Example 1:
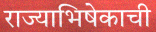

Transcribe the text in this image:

राज्याभिषेकाची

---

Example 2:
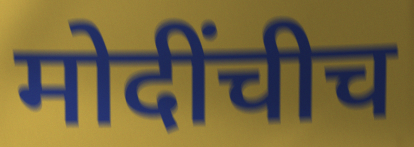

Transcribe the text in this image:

मोदींचीच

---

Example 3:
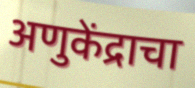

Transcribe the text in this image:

अणुकेंद्राचा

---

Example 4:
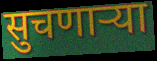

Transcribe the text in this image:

सुचणाऱ्या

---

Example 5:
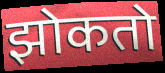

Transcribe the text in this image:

झोकतो